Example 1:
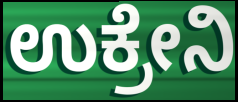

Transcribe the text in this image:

ಉಕ್ರೇನಿ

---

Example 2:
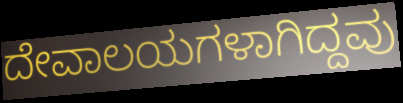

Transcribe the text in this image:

ದೇವಾಲಯಗಳಾಗಿದ್ದವು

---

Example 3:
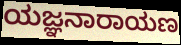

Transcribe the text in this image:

ಯಜ್ಞನಾರಾಯಣ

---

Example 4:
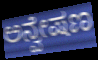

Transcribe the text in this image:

ಅನ್ವೇಷಣ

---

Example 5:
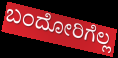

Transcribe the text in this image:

ಬಂದೋರಿಗೆಲ್ಲ